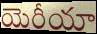
యెరీయా